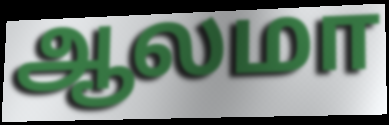
ஆலமா